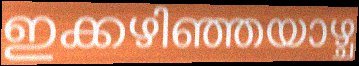
ഇക്കഴിഞ്ഞയാഴ്ച